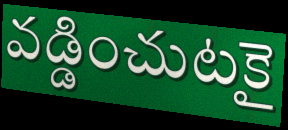
వడ్డించుటకై